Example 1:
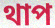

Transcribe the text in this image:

থাপ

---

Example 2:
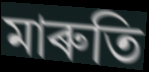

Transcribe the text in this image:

মাৰুতি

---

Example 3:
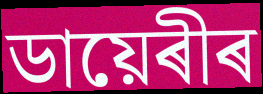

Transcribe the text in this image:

ডায়েৰীৰ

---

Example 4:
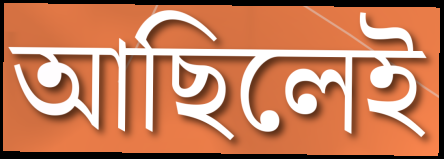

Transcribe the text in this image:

আছিলেই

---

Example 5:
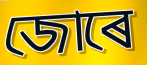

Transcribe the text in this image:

জোৰে